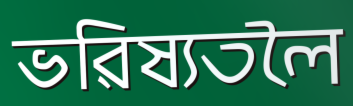
ভৱিষ্যতলৈ